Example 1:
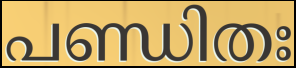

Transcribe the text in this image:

പണ്ഡിതഃ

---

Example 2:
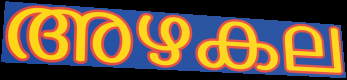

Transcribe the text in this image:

അഴകല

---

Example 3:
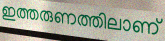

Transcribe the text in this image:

ഇത്തരുണത്തിലാണ്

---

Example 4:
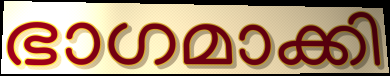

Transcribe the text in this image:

ഭാഗമാക്കി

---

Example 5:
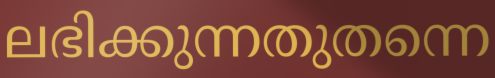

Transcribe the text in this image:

ലഭിക്കുന്നതുതന്നെ